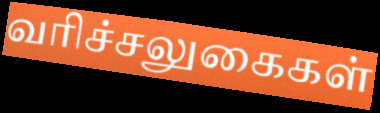
வரிச்சலுகைகள்